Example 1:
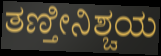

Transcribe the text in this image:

ತಣ್ತೀನಿಶ್ಚಯ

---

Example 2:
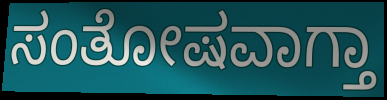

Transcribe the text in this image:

ಸಂತೋಷವಾಗ್ತಾ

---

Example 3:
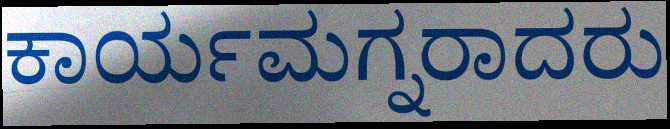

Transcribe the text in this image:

ಕಾರ್ಯಮಗ್ನರಾದರು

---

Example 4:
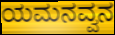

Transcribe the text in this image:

ಯಮನವ್ವನ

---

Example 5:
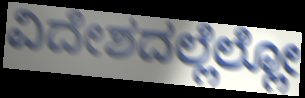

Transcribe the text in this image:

ವಿದೇಶದಲ್ಲೆಲ್ಲೋ